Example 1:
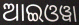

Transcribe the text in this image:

ଆଇଓୱା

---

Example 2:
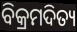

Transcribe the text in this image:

ବିକ୍ରମଦିତ୍ୟ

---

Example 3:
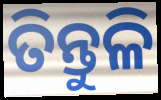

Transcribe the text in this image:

ତିନ୍ତୁଳି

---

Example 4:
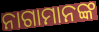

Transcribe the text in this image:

ନାଗାମାନଙ୍କ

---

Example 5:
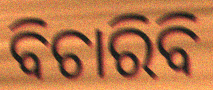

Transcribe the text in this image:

ବିଚାରିବି